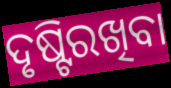
ଦୃଷ୍ଟିରଖିବା